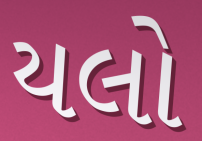
યલો